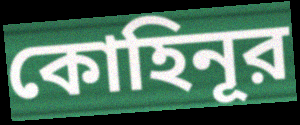
কোহিনূর